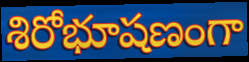
శిరోభూషణంగా